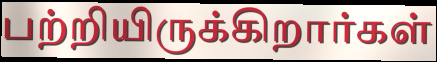
பற்றியிருக்கிறார்கள்